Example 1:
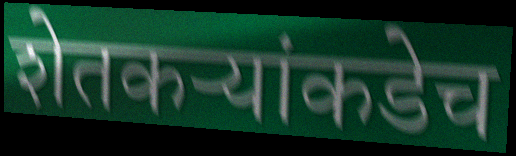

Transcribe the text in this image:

शेतकऱ्यांकडेच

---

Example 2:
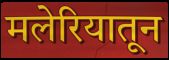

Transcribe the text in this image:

मलेरियातून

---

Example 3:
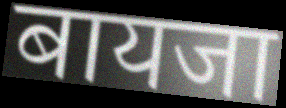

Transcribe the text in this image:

बायजा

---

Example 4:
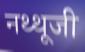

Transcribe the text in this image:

नथ्थूजी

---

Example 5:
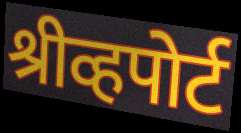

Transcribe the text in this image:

श्रीव्हपोर्ट